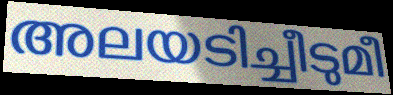
അലയടിച്ചീടുമീ